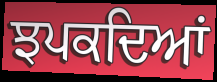
ਝਪਕਦਿਆਂ